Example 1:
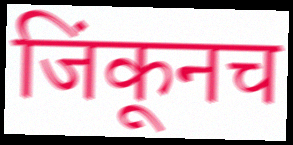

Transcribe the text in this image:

जिंकूनच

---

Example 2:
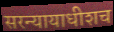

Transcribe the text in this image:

सरन्यायाधीशच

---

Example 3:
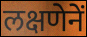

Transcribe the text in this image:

लक्षणेनें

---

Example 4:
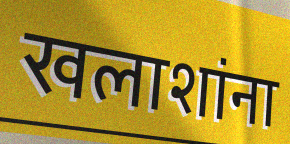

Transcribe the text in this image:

खलाशांना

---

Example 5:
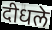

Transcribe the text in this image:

दीधले